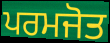
ਪਰਮਜੋਤ